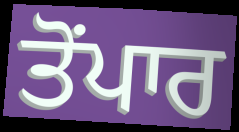
ਤੋਂਪਾਰ